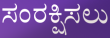
ಸಂರಕ್ಷಿಸಲು